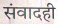
संवादही